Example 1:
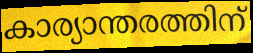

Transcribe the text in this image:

കാര്യാന്തരത്തിന്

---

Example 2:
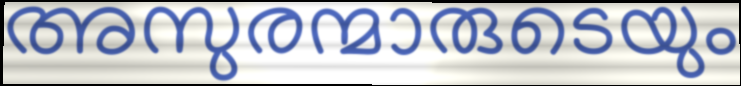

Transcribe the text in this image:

അസുരന്മാരുടെയും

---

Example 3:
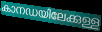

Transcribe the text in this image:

കാനഡയിലേക്കുള്ള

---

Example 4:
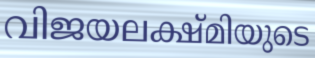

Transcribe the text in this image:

വിജയലക്ഷ്മിയുടെ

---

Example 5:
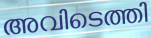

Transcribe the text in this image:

അവിടെത്തി